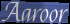
Aaroor